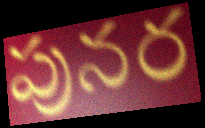
పునర